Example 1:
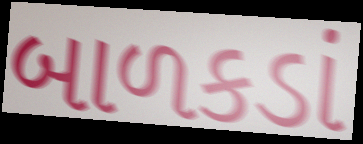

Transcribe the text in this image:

બાળકડાં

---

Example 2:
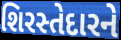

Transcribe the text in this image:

શિરસ્તેદારને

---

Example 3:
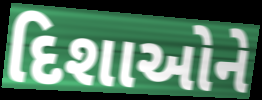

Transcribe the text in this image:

દિશાઓને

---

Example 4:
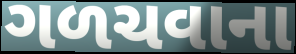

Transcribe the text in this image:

ગળચવાના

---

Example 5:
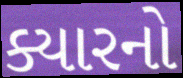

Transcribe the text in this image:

ક્યારનો